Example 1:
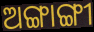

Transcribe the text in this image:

ଅଙ୍ଗାଙ୍ଗୀ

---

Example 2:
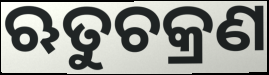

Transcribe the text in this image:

ଋତୁଚକ୍ରଣ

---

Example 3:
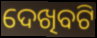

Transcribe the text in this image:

ଦେଖିବଟି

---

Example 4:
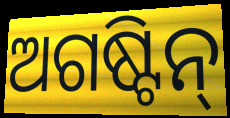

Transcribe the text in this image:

ଅଗଷ୍ଟିନ୍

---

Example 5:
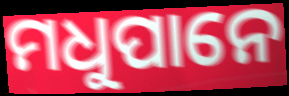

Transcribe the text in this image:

ମଧୁପାନେ